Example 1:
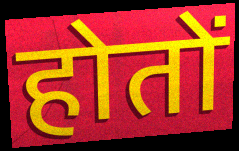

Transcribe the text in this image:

होतों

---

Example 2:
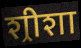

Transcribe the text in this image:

श्रीशा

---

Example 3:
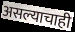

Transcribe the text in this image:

असल्याचाही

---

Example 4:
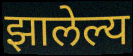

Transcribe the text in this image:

झालेल्य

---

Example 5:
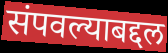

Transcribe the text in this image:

संपवल्याबद्दल